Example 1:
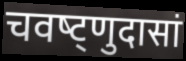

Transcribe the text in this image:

चवष्ट्णुदासां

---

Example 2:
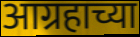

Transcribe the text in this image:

आग्रहाच्या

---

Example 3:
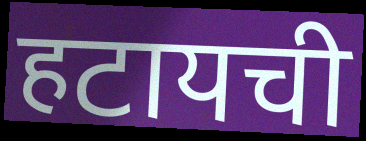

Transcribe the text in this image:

हटायची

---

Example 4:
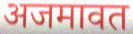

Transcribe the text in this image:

अजमावत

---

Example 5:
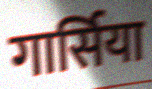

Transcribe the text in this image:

गार्सिया